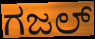
ಗಜಲ್